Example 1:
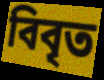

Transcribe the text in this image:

বিবৃত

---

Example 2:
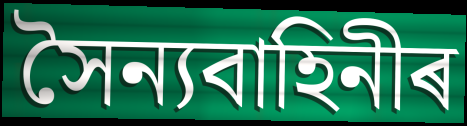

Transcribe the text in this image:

সৈন্যবাহিনীৰ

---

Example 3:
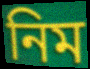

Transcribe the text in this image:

নিম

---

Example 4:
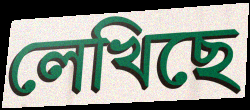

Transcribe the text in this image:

লেখিছে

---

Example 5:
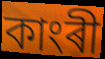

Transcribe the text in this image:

কাংৰী